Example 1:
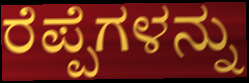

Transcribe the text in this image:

ರೆಪ್ಪೆಗಳನ್ನು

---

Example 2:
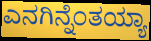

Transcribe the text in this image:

ಎನಗಿನ್ನೆಂತಯ್ಯಾ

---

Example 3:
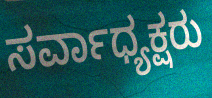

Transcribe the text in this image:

ಸರ್ವಾಧ್ಯಕ್ಷರು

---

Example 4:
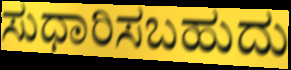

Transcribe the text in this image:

ಸುಧಾರಿಸಬಹುದು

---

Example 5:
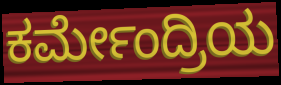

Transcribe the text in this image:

ಕರ್ಮೇಂದ್ರಿಯ